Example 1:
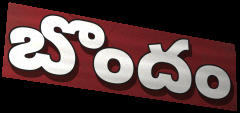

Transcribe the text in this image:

బొందం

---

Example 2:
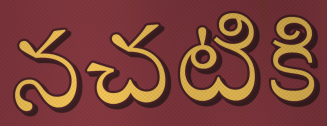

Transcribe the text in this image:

నచటికి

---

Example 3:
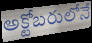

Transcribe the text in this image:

అక్టోబరులోనే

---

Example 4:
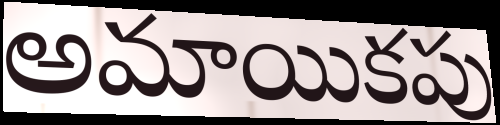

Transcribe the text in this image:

అమాయికపు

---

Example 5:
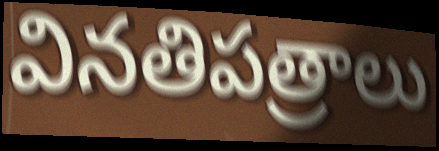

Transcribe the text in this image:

వినతిపత్రాలు